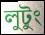
লুটুং